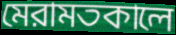
মেরামতকালে